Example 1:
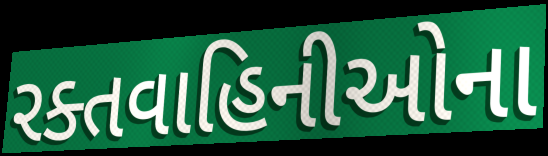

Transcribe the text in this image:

રક્તવાહિનીઓના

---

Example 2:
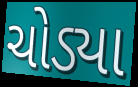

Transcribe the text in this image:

ચોડ્યા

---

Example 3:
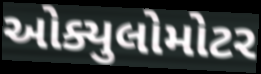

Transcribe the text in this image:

ઓક્યુલોમોટર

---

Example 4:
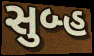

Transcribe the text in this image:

સુબ્હ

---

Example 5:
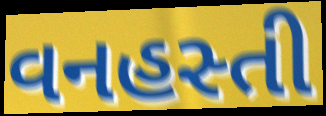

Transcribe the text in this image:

વનહસ્તી